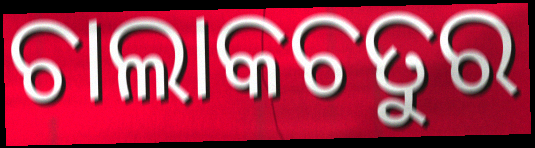
ଚାଲାକଚତୁର